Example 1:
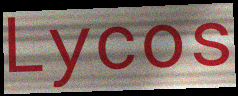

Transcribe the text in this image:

Lycos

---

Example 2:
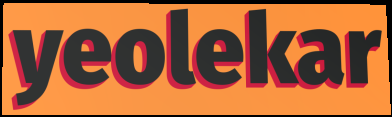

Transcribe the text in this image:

yeolekar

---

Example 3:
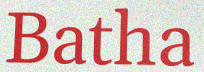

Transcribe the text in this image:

Batha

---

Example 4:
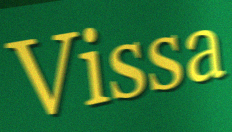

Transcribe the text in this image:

Vissa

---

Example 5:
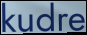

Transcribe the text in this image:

kudre